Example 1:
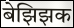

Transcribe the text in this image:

बेझिझक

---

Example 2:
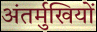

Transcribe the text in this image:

अंतर्मुखियों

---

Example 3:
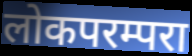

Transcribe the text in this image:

लोकपरम्परा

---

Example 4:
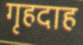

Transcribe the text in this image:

गृहदाह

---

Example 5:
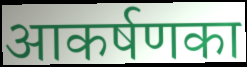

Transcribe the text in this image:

आकर्षणका